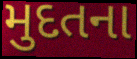
મુદતના